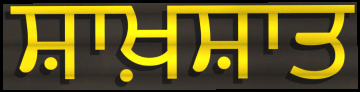
ਸ਼ਾਖ਼ਸ਼ਾਤ